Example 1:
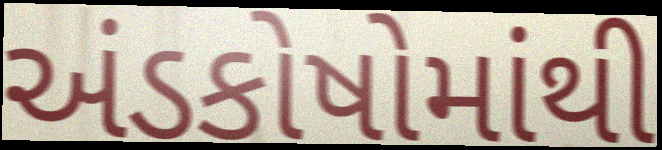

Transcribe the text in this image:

અંડકોષોમાંથી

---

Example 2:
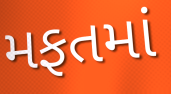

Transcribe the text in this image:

મફતમાં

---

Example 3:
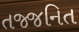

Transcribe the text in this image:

તજ્જનિત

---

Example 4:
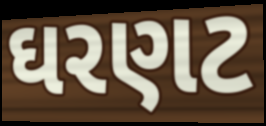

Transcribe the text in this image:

ઘરણટ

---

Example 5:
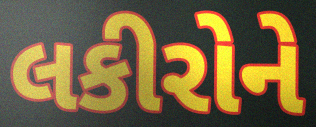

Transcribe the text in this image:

લકીરોને